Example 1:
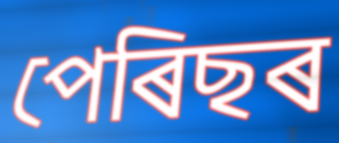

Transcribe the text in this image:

পেৰিছৰ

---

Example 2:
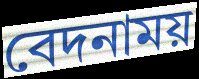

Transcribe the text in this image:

বেদনাময়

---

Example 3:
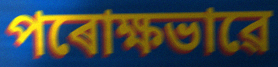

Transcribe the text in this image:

পৰোক্ষভাৱে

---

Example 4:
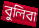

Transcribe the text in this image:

বুলিবা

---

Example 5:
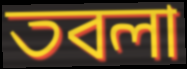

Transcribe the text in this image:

তবলা